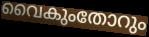
വൈകുംതോറും